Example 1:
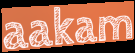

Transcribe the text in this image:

aakam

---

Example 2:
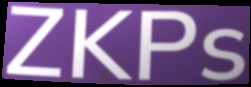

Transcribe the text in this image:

ZKPs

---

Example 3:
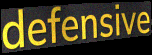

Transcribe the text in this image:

defensive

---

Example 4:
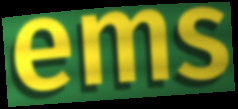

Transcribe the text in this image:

ems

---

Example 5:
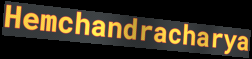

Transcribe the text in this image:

Hemchandracharya